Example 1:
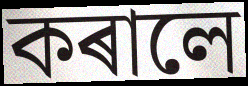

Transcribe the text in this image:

কৰালে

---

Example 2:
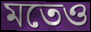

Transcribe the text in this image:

মতেও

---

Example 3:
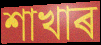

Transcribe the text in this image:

শাখাৰ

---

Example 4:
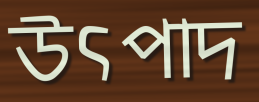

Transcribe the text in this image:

উৎপাদ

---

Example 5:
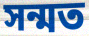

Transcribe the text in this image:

সন্মত